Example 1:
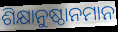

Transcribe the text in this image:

ଶିକ୍ଷାନୁଷ୍ଠାନମାନ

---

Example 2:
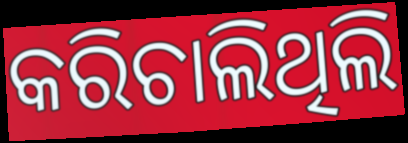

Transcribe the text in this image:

କରିଚାଲିଥିଲି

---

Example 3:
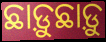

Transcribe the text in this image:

ଛାଡ଼ୁଛାଡ଼ୁ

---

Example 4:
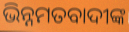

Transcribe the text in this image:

ଭିନ୍ନମତବାଦୀଙ୍କ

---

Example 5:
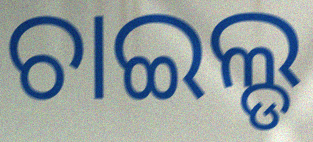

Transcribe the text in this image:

ଚାଇଲ୍ଡ